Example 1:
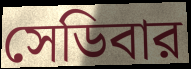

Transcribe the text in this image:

সেডিবার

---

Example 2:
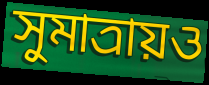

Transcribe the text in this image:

সুমাত্রায়ও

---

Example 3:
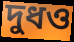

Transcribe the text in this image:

দুধও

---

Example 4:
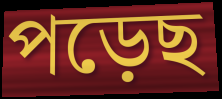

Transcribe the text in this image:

পড়েছ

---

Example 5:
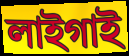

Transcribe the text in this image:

লাইগাই